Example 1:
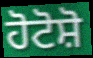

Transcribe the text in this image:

ਹੋਟੋਸ਼ੋ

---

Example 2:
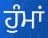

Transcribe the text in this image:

ਹੁੰਮਾਂ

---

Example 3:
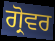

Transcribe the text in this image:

ਗ੍ਰੋਵਰ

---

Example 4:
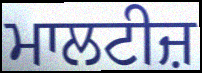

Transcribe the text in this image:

ਮਾਲਟੀਜ਼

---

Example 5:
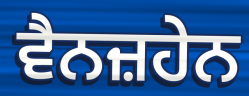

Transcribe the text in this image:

ਵੈਨਜ਼ਹੇਨ